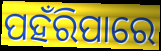
ପହଁରିପାରେ